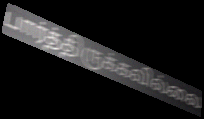
பார்த்திருக்கவில்லை